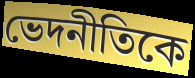
ভেদনীতিকে